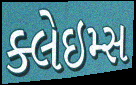
ક્લેઇમ્સ